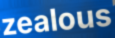
zealous